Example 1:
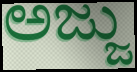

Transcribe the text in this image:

ಅಜ್ಜು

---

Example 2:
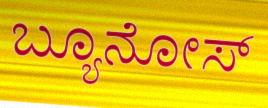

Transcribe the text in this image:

ಬ್ಯೂನೋಸ್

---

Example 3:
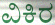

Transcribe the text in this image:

ವಿಕಿರ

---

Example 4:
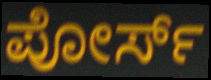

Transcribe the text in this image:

ಪೋರ್ಸ್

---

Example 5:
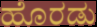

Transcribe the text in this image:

ಹೊರಡು